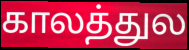
காலத்துல